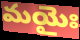
మయైః